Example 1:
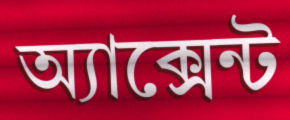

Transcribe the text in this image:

অ্যাক্সেন্ট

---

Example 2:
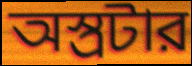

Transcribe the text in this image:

অস্ত্রটার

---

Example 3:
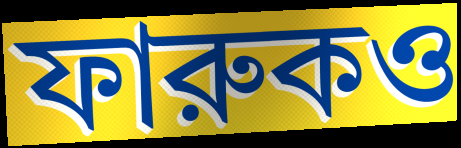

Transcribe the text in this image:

ফারুকও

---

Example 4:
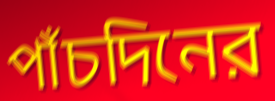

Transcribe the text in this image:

পাঁচদিনের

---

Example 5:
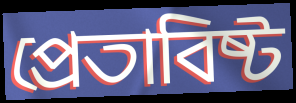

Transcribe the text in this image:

প্রেতাবিষ্ট